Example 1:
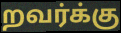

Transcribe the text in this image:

றவர்க்கு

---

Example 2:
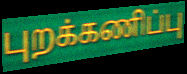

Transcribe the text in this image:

புறக்கணிப்பு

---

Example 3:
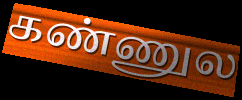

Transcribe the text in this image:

கண்ணுல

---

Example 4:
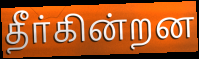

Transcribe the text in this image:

தீர்கின்றன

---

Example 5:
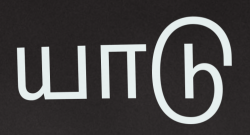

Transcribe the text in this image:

யாடு